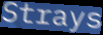
Strays